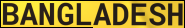
BANGLADESH